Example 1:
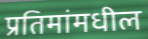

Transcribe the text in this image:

प्रतिमांमधील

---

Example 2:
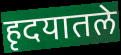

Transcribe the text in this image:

हृदयातले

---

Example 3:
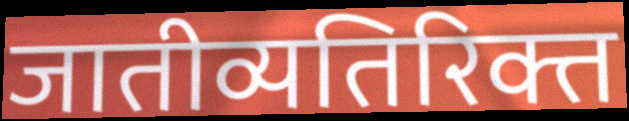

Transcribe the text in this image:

जातीव्यतिरिक्त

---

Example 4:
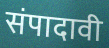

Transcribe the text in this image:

संपादावी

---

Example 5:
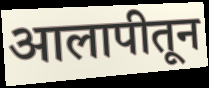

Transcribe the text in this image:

आलापीतून